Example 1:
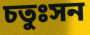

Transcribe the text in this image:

চতুঃসন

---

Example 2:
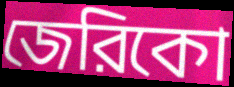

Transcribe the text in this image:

জেরিকো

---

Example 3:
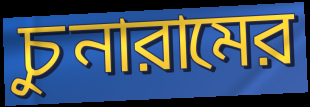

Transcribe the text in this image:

চুনারামের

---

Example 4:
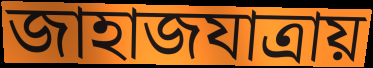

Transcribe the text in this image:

জাহাজযাত্রায়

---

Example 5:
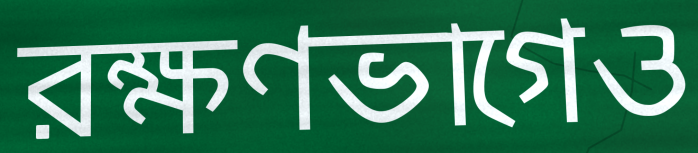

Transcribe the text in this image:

রক্ষণভাগেও